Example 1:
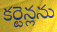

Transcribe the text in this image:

కర్టెన్లను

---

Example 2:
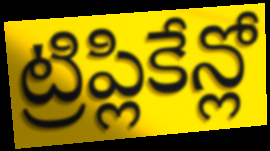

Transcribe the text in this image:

ట్రిప్లికేన్లో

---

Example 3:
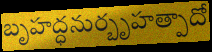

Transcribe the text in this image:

బృహద్ధనుర్బృహత్పాదో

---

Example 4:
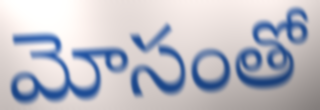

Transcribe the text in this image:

మోసంతో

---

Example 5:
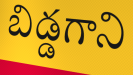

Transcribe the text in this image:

బిడ్డగాని